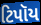
ટિપૉય